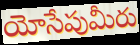
యోసేపుమీరు